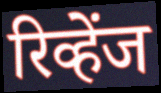
रिव्हेंज